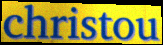
christou